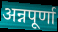
अन्नपूर्णा